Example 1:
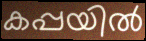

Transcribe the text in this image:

കപ്പയിൽ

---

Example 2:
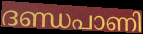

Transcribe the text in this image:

ദണ്ഡപാണി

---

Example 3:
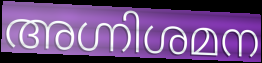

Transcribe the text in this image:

അഗ്നിശമന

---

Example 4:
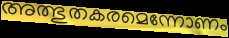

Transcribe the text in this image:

അത്ഭുതകരമെന്നോണം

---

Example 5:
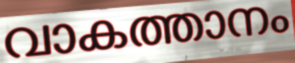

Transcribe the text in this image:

വാകത്താനം